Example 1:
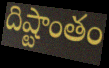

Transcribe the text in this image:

దిష్టాంతం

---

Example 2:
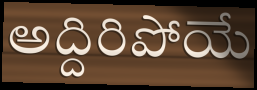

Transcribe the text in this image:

అద్దిరిపోయే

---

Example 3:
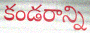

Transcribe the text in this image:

కండరాన్ని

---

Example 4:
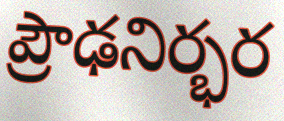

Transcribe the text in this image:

ప్రౌఢనిర్భర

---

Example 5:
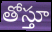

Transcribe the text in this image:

తోస్తూ